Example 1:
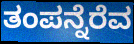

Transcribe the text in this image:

ತಂಪನ್ನೆರೆವ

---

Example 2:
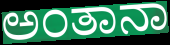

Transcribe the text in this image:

ಅಂತಾನಾ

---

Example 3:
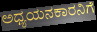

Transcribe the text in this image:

ಅಧ್ಯಯನಕಾರನಿಗೆ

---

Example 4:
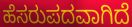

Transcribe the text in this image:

ಹೆಸರುಪದವಾಗಿದೆ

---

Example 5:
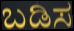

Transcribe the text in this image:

ಬಡಿಸ